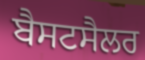
ਬੈਸਟਸੈਲਰ